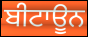
ਬੀਟਾਊਨ